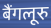
बैंगलूरु